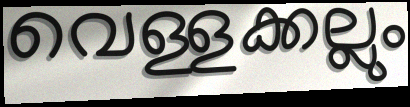
വെള്ളക്കല്ലും